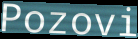
Pozovi